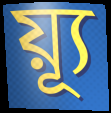
য়্যূ